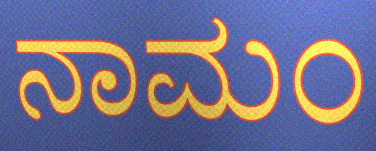
ನಾಮಂ